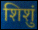
शिशुं